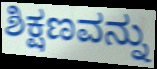
ಶಿಕ್ಷಣವನ್ನು